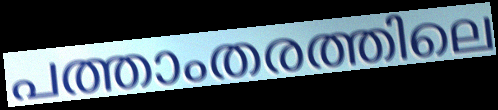
പത്താംതരത്തിലെ